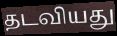
தடவியது